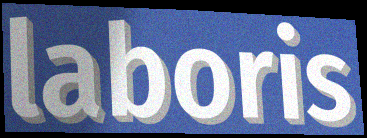
laboris